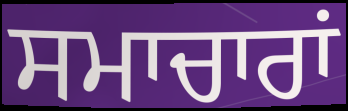
ਸਮਾਚਾਰਾਂ